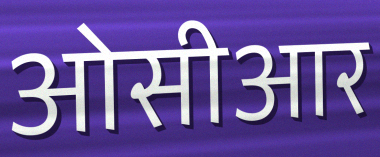
ओसीआर